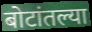
बोटांतल्या